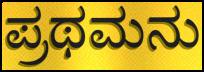
ಪ್ರಥಮನು